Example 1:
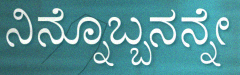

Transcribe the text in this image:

ನಿನ್ನೊಬ್ಬನನ್ನೇ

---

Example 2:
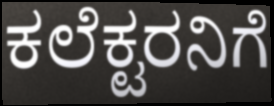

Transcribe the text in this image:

ಕಲೆಕ್ಟರನಿಗೆ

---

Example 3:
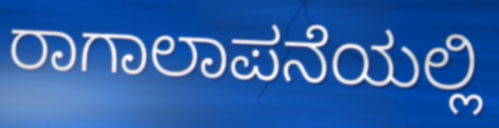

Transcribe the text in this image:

ರಾಗಾಲಾಪನೆಯಲ್ಲಿ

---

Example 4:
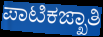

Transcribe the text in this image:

ಪಾಟಿಕಙ್ಖಾತಿ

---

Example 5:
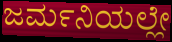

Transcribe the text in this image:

ಜರ್ಮನಿಯಲ್ಲೇ